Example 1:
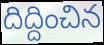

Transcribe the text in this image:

దిద్దించిన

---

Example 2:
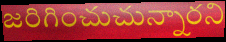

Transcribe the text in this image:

జరిగించుచున్నారని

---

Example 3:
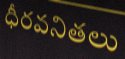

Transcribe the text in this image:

ధీరవనితలు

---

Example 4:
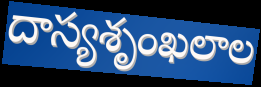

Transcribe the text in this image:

దాస్యశృంఖలాల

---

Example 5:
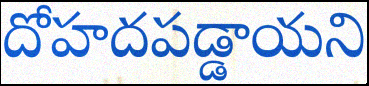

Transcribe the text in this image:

దోహదపడ్డాయని